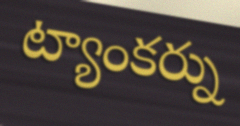
ట్యాంకర్ను